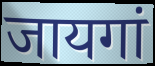
जायगां